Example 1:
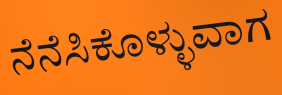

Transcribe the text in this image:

ನೆನೆಸಿಕೊಳ್ಳುವಾಗ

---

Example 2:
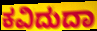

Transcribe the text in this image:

ಕವಿದುದಾ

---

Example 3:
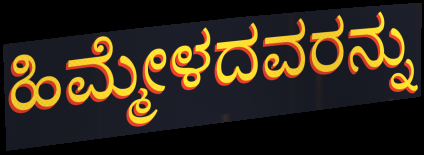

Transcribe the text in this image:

ಹಿಮ್ಮೇಳದವರನ್ನು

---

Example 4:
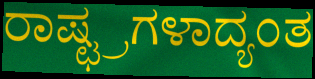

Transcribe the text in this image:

ರಾಷ್ಟ್ರಗಳಾದ್ಯಂತ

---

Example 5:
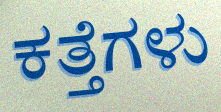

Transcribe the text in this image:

ಕತ್ತೆಗಳು